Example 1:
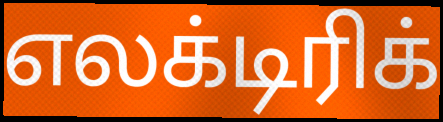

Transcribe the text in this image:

எலக்டிரிக்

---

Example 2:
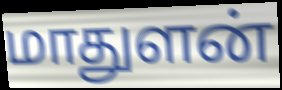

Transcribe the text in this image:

மாதுளன்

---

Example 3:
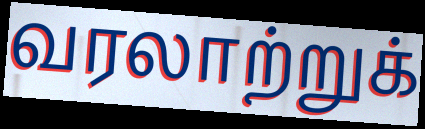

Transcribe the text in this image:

வரலாற்றுக்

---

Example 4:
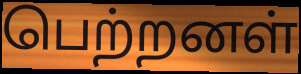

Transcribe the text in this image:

பெற்றனள்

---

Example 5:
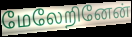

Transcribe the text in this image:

மேலேறினேன்